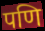
पणि